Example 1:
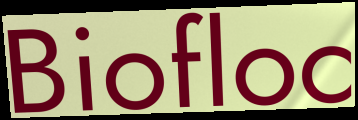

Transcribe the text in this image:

Biofloc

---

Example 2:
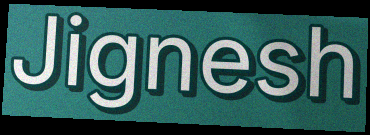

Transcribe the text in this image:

Jignesh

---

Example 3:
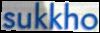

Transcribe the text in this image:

sukkho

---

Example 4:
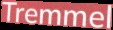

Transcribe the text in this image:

Tremmel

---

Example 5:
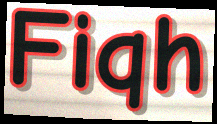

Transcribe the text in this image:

Fiqh